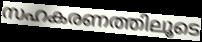
സഹകരണത്തിലൂടെ